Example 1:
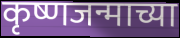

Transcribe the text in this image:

कृष्णजन्माच्या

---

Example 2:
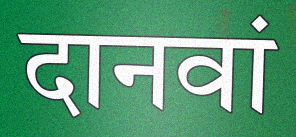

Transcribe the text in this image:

दानवां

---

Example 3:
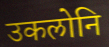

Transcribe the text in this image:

उकलोनि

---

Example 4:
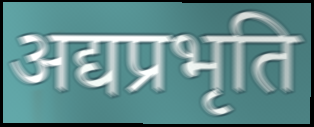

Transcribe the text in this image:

अद्यप्रभृति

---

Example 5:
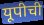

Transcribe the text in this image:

यूपीची